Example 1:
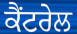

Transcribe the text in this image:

ਕੈਂਟਰੇਲ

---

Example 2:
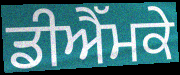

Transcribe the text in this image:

ਡੀਐੱਮਕੇ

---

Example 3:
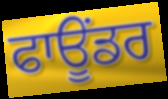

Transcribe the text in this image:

ਫਾਊਂਡਰ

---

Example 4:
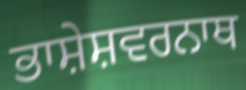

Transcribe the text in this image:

ਭਾਸ਼ੇਸ਼ਵਰਨਾਥ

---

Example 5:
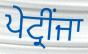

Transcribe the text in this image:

ਪੇਟ੍ਰੀਂਜਾ